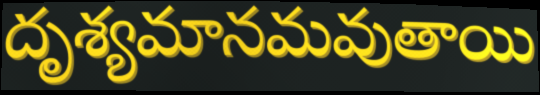
దృశ్యమానమవుతాయి